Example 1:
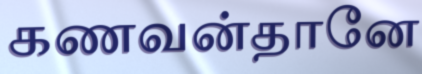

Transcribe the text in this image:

கணவன்தானே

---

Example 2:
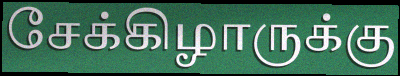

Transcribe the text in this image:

சேக்கிழாருக்கு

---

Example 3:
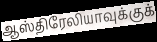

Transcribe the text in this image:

ஆஸ்திரேலியாவுக்குக்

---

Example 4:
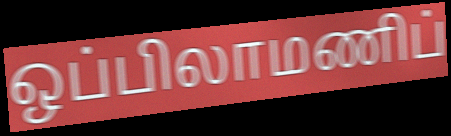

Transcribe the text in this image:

ஒப்பிலாமணிப்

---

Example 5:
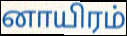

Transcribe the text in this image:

னாயிரம்